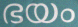
ഭയം